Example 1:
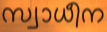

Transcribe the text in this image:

സ്വാധീന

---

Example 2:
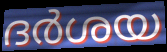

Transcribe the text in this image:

ദർശയ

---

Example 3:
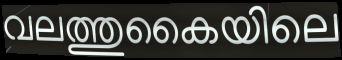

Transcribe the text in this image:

വലത്തുകൈയിലെ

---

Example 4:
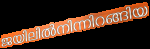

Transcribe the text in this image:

ജയിലിൽനിന്നിറങ്ങിയ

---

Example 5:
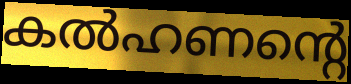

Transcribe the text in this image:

കൽഹണന്റെ